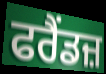
ਫਰੈਂਡਜ਼